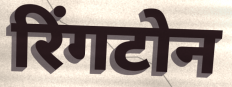
रिंगटोन